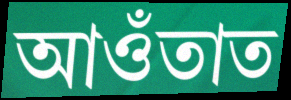
আওঁতাত